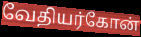
வேதியர்கோன்